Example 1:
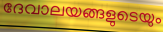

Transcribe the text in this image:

ദേവാലയങ്ങളുടെയും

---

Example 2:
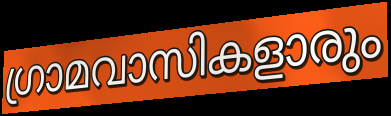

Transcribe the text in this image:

ഗ്രാമവാസികളാരും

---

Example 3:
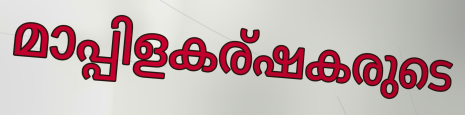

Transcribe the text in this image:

മാപ്പിളകര്ഷകരുടെ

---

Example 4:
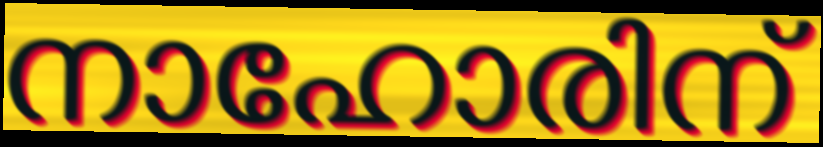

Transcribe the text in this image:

നാഹോരിന്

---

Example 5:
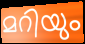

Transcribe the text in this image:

മറിയും